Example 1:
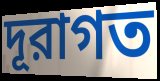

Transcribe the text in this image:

দূরাগত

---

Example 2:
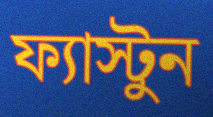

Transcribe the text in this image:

ফ্যাস্টুন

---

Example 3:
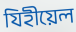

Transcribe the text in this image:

যিহীয়েল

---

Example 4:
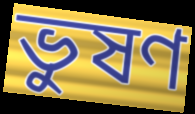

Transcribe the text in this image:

ভুষণ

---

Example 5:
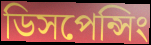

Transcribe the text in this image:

ডিসপেন্সিং